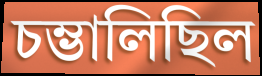
চম্ভালিছিল